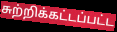
சுற்றிக்கட்டப்பட்ட